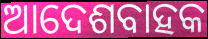
ଆଦେଶବାହକ